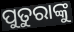
ପୁତୁରାଙ୍କୁ